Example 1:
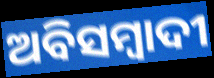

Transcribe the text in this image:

ଅବିସମ୍ବାଦୀ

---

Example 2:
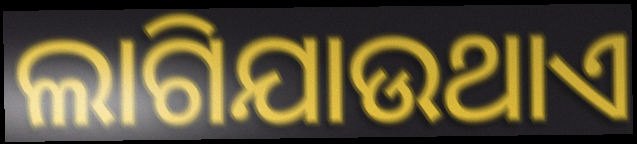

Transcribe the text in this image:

ଲାଗିଯାଉଥାଏ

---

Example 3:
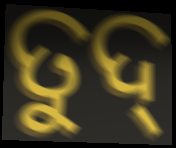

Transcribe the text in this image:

ତୁଦ୍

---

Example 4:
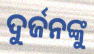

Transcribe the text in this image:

ଦୁର୍ଜନଙ୍କୁ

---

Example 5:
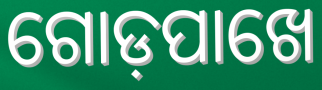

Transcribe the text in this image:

ଗୋଡ଼ପାଖେ